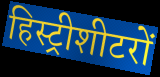
हिस्ट्रीशीटरों